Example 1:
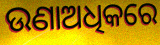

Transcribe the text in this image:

ଉଣାଅଧିକରେ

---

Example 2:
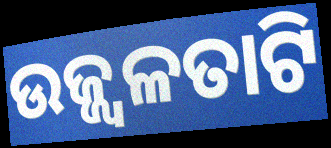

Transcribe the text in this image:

ଉଜ୍ଜ୍ୱଳତାଟି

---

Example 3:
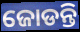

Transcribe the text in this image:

ଜୋଡନ୍ତି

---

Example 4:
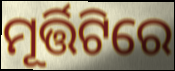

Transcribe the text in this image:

ମୂର୍ତ୍ତିଟିରେ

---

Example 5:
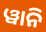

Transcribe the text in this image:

ୱାନି